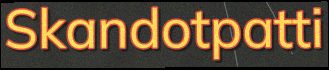
Skandotpatti